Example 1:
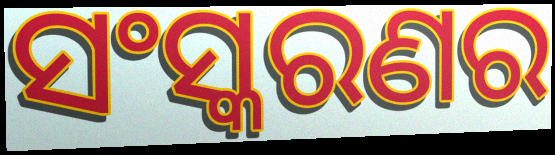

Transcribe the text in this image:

ସଂସ୍କରଣର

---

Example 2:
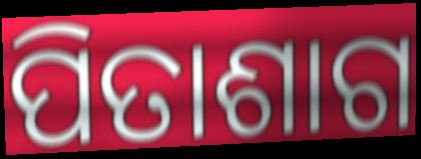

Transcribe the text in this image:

ପିତାଶାଗ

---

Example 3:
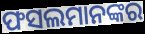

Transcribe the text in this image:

ଫସଲମାନଙ୍କର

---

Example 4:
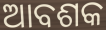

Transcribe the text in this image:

ଆବଶକ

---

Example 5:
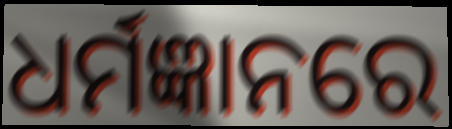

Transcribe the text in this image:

ଧର୍ମଜ୍ଞାନରେ